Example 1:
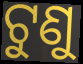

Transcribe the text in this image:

ଟୁଣୁ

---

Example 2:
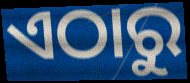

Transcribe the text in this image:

ଏଠାରୁ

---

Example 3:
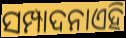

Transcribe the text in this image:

ସମ୍ପାଦନାଏହି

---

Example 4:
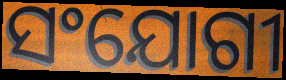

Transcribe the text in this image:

ସଂଯୋଗୀ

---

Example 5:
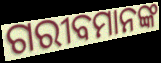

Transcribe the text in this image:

ଗରୀବମାନଙ୍କ